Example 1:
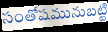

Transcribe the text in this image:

సంతోషమునుబట్టి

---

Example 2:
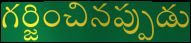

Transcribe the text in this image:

గర్జించినప్పుడు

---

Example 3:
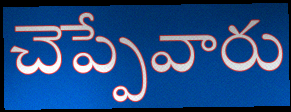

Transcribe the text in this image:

చెప్పేవారు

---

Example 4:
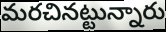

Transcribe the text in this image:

మరచినట్టున్నారు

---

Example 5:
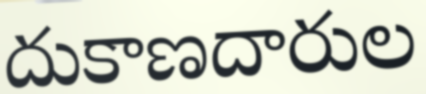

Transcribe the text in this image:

దుకాణదారుల